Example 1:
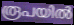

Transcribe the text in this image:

രൂപയിൽ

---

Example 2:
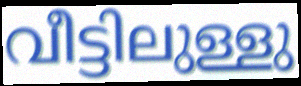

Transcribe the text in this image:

വീട്ടിലുള്ളു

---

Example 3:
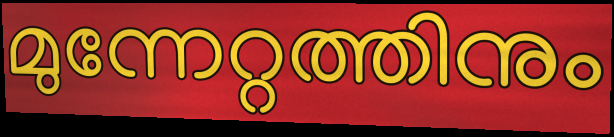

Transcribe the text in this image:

മുന്നേറ്റത്തിനും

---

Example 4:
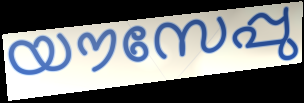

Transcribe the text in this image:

യൗസേപ്പു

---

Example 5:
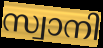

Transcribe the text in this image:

സ്വാനി